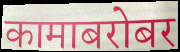
कामाबरोबर